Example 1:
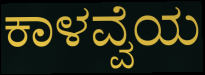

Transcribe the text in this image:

ಕಾಳವ್ವೆಯ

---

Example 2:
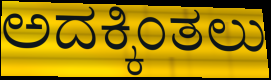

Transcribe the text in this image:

ಅದಕ್ಕಿಂತಲು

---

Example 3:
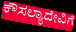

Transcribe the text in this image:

ಕೌಸಲ್ಯಾದೇವಿಗೆ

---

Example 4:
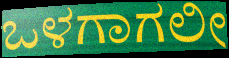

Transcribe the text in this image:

ಒಳಗಾಗಲೀ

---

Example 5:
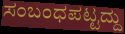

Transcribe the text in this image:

ಸಂಬಂಧಪಟ್ಟದ್ದು